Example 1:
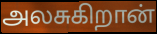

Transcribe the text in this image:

அலசுகிறான்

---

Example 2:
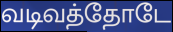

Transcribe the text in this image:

வடிவத்தோடே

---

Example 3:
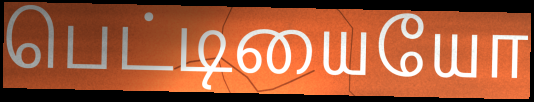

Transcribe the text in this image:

பெட்டியையோ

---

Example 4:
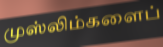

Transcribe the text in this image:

முஸ்லிம்களைப்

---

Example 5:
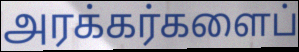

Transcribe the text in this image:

அரக்கர்களைப்